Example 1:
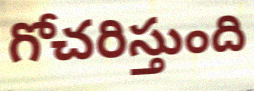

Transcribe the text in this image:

గోచరిస్తుంది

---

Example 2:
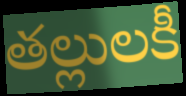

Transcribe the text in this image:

తల్లులకీ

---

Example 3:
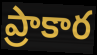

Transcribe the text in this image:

ప్రాకార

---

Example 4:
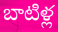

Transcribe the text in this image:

బాటిళ్ల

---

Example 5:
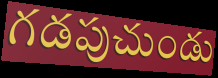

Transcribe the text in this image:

గడపుచుండు